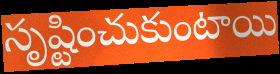
సృష్టించుకుంటాయి